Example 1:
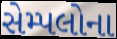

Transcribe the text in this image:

સેમ્પલોના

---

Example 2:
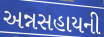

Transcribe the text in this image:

અન્નસહાયની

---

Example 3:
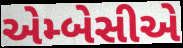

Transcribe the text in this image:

એમ્બેસીએ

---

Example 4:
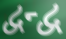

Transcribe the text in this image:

દ્વન્દ્વ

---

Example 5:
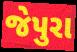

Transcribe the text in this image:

જેપુરા